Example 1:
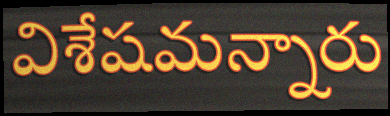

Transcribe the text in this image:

విశేషమన్నారు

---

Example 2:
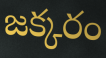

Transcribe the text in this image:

జక్కరం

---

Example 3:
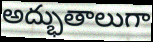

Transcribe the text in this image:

అద్భుతాలుగా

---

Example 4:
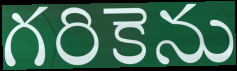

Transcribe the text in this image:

గరికెను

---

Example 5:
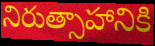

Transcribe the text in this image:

నిరుత్సాహానికి